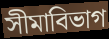
সীমাবিভাগ